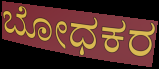
ಬೋಧಕರ